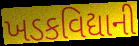
ખડકવિદ્યાની